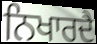
ਨਿਖਾਰਦੈ